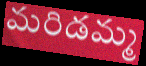
మరిడమ్మ